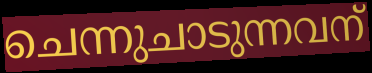
ചെന്നുചാടുന്നവന്